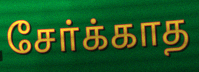
சேர்க்காத